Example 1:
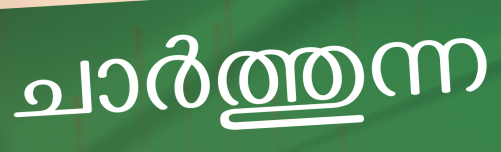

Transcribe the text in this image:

ചാർത്തുന്ന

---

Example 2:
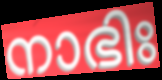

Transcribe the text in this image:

നാഭിഃ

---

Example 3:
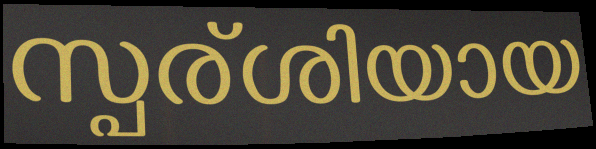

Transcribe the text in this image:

സ്പര്ശിയായ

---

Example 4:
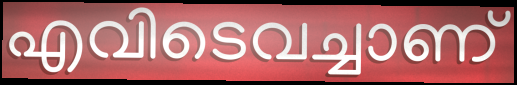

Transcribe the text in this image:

എവിടെവച്ചാണ്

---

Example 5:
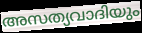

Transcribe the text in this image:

അസത്യവാദിയും